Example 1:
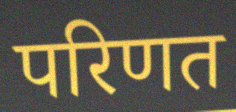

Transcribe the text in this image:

परिणत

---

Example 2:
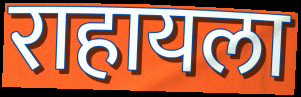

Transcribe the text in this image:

राहायला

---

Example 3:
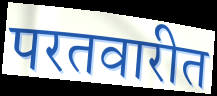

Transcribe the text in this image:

परतवारीत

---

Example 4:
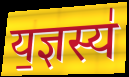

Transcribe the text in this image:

य॒ज्ञस्य॑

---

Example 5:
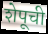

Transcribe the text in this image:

शेपूची